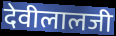
देवीलालजी